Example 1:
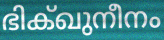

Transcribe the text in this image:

ഭിക്ഖുനീനം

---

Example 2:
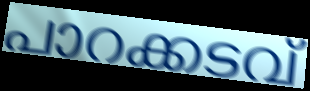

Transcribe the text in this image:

പാറക്കടവ്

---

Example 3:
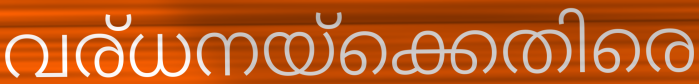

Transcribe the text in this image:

വര്ധനയ്ക്കെതിരെ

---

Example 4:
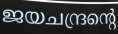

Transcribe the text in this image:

ജയചന്ദ്രന്റെ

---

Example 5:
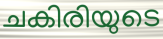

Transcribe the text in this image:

ചകിരിയുടെ